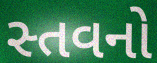
સ્તવનો